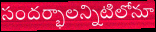
సందర్భాలన్నిటిలోనూ